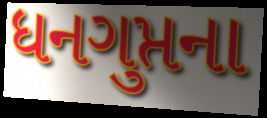
ધનગુપ્તના